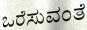
ಒರೆಸುವಂತೆ